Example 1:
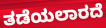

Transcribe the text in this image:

ತಡೆಯಲಾರದೆ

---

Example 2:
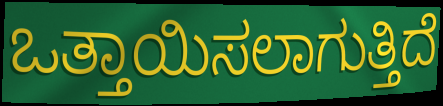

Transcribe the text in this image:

ಒತ್ತಾಯಿಸಲಾಗುತ್ತಿದೆ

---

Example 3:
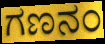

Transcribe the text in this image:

ಗಣನಂ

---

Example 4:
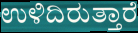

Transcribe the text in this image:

ಉಳಿದಿರುತ್ತಾರೆ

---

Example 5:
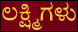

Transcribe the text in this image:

ಲಕ್ಷ್ಮಿಗಳು